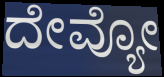
ದೇವ್ಯೋ